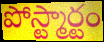
పోస్ట్మార్టం